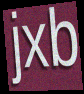
jxb